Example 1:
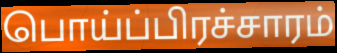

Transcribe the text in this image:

பொய்ப்பிரச்சாரம்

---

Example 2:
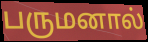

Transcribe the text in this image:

பருமனால்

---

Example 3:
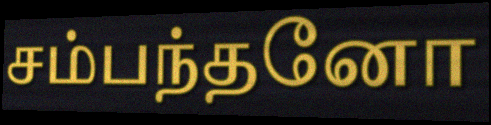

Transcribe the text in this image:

சம்பந்தனோ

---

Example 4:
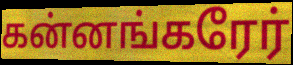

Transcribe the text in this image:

கன்னங்கரேர்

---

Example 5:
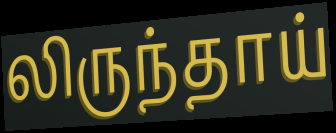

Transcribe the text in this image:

லிருந்தாய்